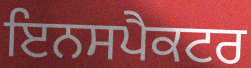
ਇਨਸਪੈਕਟਰ